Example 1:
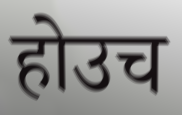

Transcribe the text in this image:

होउच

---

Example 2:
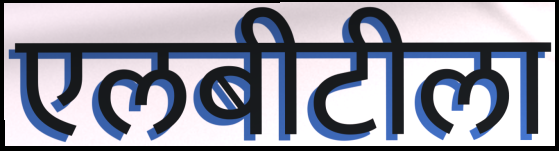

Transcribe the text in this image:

एलबीटीला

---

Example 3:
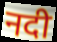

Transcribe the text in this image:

नदी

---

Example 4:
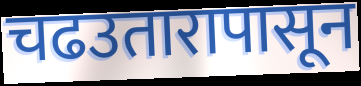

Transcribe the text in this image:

चढउतारापासून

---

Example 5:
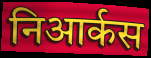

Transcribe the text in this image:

निआर्कस